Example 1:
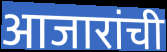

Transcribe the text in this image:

आजारांची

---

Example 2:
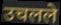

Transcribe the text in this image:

उचलले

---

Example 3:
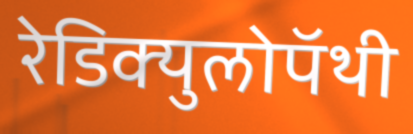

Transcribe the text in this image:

रेडिक्युलोपॅथी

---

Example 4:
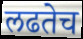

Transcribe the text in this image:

लढतेच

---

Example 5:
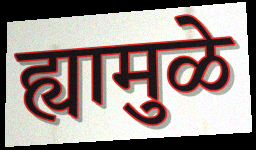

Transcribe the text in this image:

ह्यामुळे